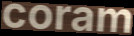
coram